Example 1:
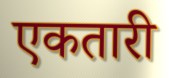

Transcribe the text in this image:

एकतारी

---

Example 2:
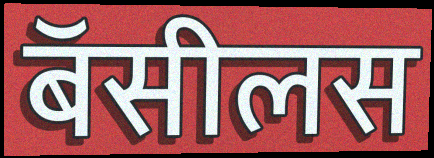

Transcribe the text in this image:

बॅसीलस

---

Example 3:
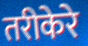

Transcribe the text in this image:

तरीकेरे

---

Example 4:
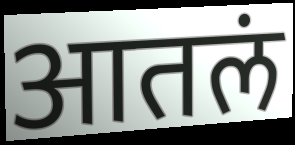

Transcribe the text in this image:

आतलं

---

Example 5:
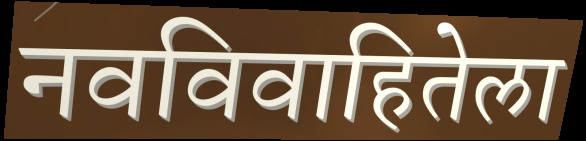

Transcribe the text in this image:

नवविवाहितेला